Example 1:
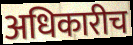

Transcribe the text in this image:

अधिकारीच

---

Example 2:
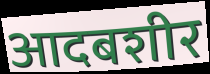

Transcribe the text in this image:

आदबशीर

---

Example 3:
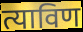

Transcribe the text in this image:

त्याविण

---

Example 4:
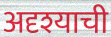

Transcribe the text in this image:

अदृश्याची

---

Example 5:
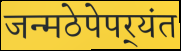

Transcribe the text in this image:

जन्मठेपेपर्यंत